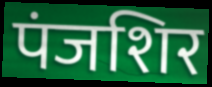
पंजशिर